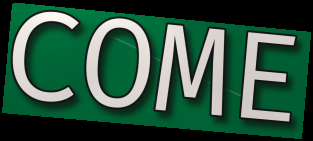
COME